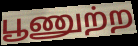
பூணுற்ற